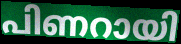
പിണറായി